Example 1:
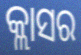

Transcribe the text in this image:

କ୍ଲାସର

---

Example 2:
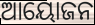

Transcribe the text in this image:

ଆୟୋଜନ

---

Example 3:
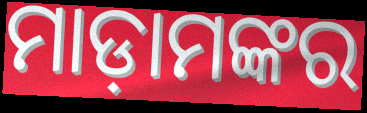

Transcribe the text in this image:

ମାଡ଼ାମଙ୍କର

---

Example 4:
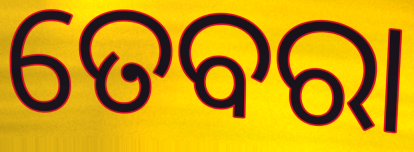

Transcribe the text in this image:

ତେବରା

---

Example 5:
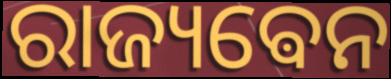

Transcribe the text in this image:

ରାଜ୍ୟଵେନ